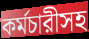
কর্মচারীসহ